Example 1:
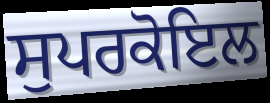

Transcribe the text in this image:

ਸੁਪਰਕੋਇਲ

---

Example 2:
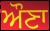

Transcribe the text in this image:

ਔਣਾ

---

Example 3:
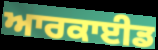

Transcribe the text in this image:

ਆਰਕਾਈਡ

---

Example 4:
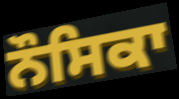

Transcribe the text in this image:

ਨੌਸਿਕਾ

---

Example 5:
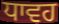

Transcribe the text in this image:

ਧਾਵਹ